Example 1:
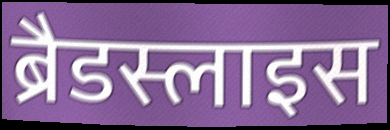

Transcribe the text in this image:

ब्रैडस्लाइस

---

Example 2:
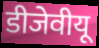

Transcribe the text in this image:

डीजेवीयू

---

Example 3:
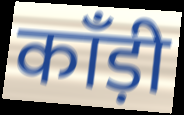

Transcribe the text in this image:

काँड़ी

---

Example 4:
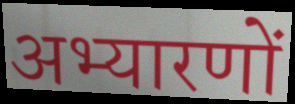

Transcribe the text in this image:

अभ्यारणों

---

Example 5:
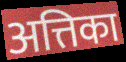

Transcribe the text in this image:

अत्तिका